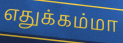
எதுக்கம்மா